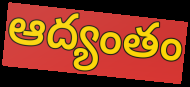
ఆద్యంతం